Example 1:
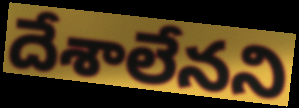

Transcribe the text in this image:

దేశాలేనని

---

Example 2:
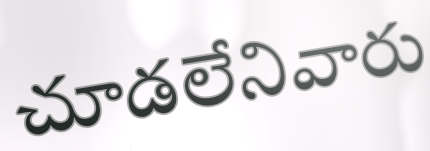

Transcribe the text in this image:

చూడలేనివారు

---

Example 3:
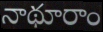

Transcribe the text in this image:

నాథూరాం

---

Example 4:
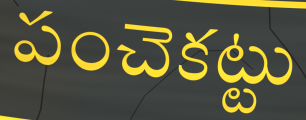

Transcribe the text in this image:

పంచెకట్టు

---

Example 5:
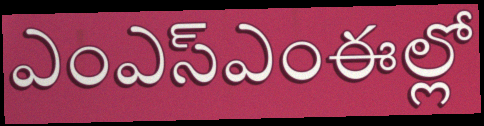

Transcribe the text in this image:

ఎంఎస్ఎంఈల్లో